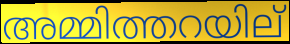
അമ്മിത്തറയില്